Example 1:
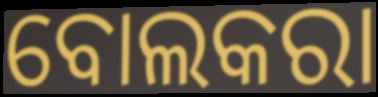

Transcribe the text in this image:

ବୋଲକରା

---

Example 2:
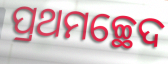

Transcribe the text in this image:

ପ୍ରଥମଚ୍ଛେଦ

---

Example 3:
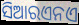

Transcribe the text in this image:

ସିଆରଏନଏ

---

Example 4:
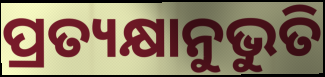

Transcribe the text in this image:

ପ୍ରତ୍ୟକ୍ଷାନୁଭୁତି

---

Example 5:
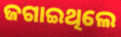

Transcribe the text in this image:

ଜଗାଇଥିଲେ